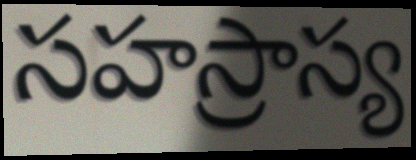
సహస్రాస్య